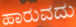
ಹಾರುವದು